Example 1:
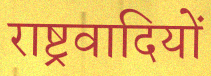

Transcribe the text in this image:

राष्ट्रवादियों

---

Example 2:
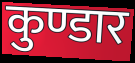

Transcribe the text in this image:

कुण्डार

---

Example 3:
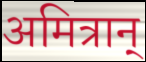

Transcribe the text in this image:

अमित्रान्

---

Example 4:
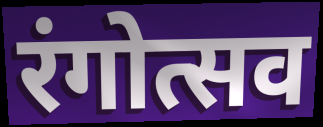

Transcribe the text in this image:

रंगोत्सव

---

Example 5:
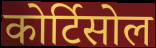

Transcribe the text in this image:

कोर्टिसोल